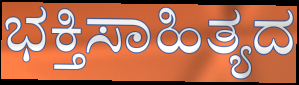
ಭಕ್ತಿಸಾಹಿತ್ಯದ